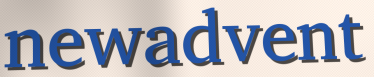
newadvent